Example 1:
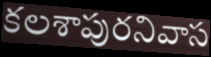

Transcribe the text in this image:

కలశాపురనివాస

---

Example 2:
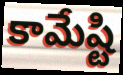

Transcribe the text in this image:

కామేష్టి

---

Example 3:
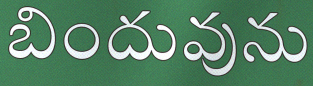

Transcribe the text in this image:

బిందువును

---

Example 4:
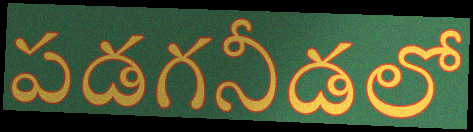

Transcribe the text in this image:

పడగనీడలో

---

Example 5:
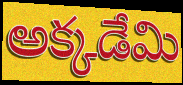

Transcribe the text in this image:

అక్కడేమి